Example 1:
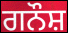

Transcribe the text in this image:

ਗਨੌਸ਼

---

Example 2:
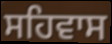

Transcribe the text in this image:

ਸਹਿਵਾਸ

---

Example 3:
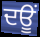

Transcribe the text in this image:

ਦਊਂ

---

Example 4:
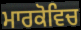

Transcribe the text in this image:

ਮਾਰਕੋਵਿਚ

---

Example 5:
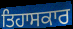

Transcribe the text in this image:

ਤਿਹਾਸਕਾਰ